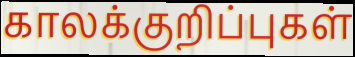
காலக்குறிப்புகள்